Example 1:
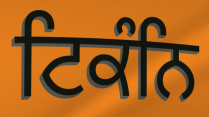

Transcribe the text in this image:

ਟਿਕੰਨਿ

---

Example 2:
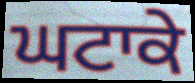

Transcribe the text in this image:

ਘਟਾਕੇ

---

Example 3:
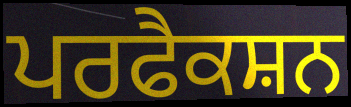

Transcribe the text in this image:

ਪਰਫੈਕਸ਼ਨ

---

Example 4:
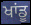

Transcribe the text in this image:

ਖਾਂਡੂ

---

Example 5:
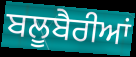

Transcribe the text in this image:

ਬਲੂਬੈਰੀਆਂ